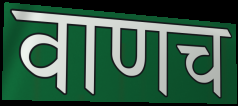
वाणच